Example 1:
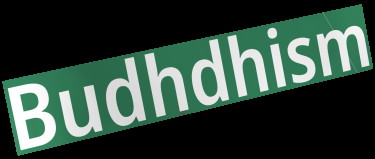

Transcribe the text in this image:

Budhdhism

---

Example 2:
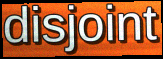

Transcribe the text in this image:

disjoint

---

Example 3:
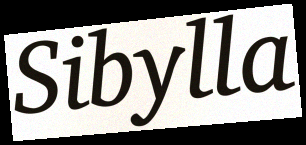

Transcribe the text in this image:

Sibylla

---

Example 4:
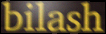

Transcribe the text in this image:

bilash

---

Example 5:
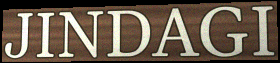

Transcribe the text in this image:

JINDAGI